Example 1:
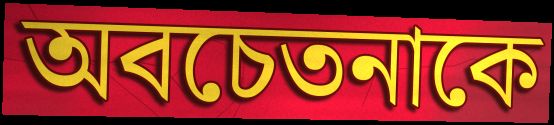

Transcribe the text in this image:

অবচেতনাকে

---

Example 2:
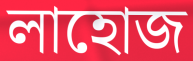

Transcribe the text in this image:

লাহোজ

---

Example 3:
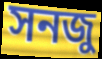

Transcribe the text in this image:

সনজু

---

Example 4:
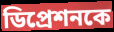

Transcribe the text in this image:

ডিপ্রেশনকে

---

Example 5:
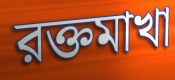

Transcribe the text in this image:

রক্তমাখা